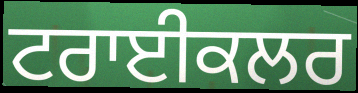
ਟਰਾਈਕਲਰ